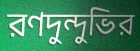
রণদুন্দুভির